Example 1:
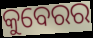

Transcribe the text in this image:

କୁବେରର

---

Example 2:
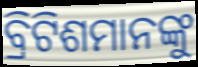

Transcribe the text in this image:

ବ୍ରିଟିଶମାନଙ୍କୁ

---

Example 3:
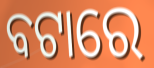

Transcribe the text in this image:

ବଟାରେ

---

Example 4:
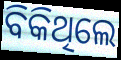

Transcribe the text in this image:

ବିକିଥିଲେ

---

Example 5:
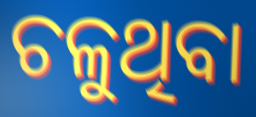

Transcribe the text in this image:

ଚଳୁଥିବା